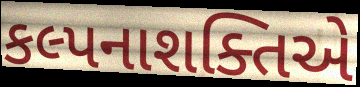
કલ્પનાશક્તિએ